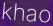
khao